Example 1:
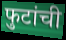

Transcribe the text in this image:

फुटांची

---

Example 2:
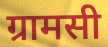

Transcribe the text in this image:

ग्रामसी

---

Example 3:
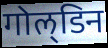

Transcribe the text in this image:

गोल्डिन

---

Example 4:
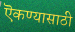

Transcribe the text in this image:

ऎकण्यासाठी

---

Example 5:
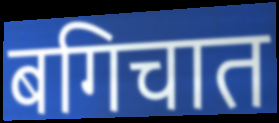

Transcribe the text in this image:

बगिचात